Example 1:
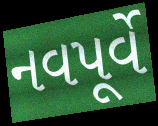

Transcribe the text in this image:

નવપૂર્વે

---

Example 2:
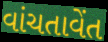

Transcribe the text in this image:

વાંચતાવેંત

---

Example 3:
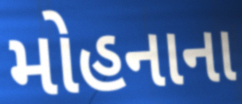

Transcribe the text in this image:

મોહનાના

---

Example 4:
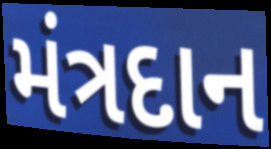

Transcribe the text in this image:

મંત્રદાન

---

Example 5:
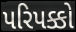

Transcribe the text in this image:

પરિપક્કો